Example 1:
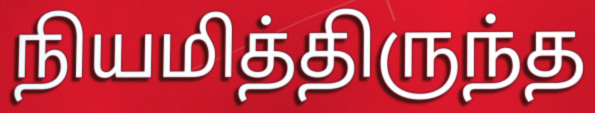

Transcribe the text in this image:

நியமித்திருந்த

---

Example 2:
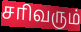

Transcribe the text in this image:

சரிவரும்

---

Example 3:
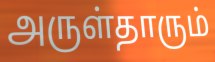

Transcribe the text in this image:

அருள்தாரும்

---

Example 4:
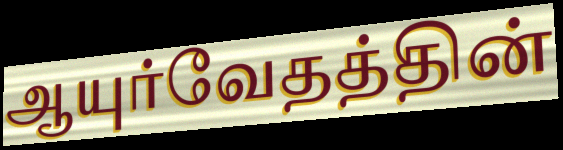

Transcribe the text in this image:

ஆயுர்வேதத்தின்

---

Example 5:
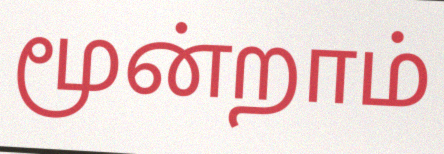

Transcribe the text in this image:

மூன்றாம்